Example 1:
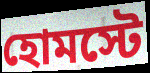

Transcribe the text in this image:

হোমস্টে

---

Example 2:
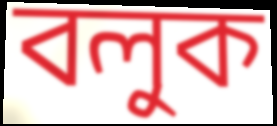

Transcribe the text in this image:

বলুক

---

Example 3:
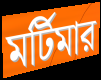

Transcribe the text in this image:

মর্টিমার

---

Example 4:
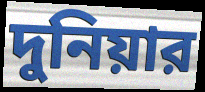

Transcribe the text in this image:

দুনিয়ার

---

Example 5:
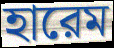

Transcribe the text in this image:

হারেম